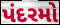
પંદરમો